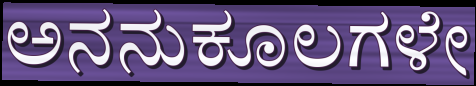
ಅನನುಕೂಲಗಳೇ